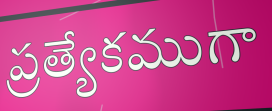
ప్రత్యేకముగా